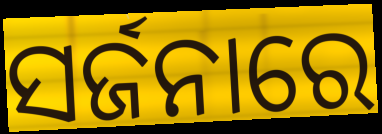
ସର୍ଜନାରେ